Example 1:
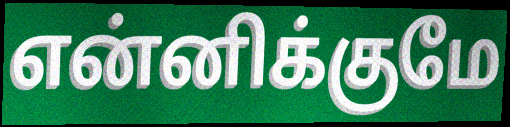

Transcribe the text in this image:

என்னிக்குமே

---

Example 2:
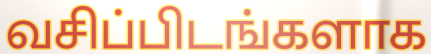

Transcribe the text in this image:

வசிப்பிடங்களாக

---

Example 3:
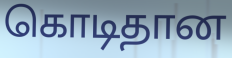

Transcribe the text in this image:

கொடிதான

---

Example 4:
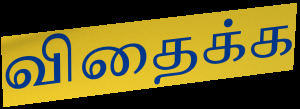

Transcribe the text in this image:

விதைக்க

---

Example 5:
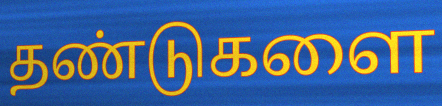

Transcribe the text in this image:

தண்டுகளை